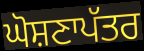
ਘੋਸ਼ਣਾਪੱਤਰ